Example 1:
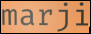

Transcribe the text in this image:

marji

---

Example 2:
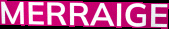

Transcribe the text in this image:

MERRAIGE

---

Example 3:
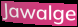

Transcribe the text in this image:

Jawalge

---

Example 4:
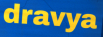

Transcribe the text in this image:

dravya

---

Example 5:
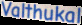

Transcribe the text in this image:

Valthukal